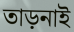
তাড়নাই